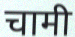
चामी